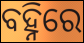
ବହ୍ନିରେ